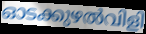
ഓടക്കുഴൽവിളി